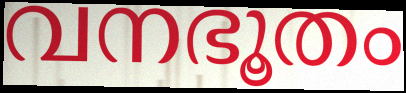
വനഭൂതം